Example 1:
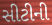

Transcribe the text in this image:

સીટીની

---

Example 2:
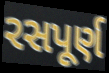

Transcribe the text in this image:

રસપૂર્ણ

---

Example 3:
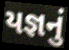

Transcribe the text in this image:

યજ્ઞનું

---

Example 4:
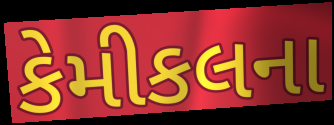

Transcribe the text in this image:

કેમીકલના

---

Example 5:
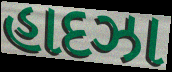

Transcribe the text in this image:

હાદઝા